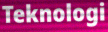
Teknologi